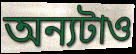
অন্যটাও